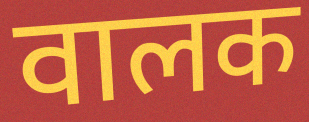
वालक